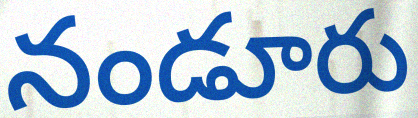
నండూరు